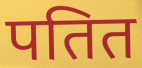
पतित